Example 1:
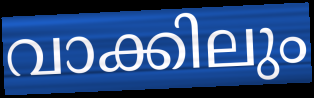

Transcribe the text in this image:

വാക്കിലും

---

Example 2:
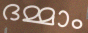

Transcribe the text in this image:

ദമ്മാം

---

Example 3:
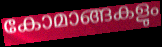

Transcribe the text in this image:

കോമാങ്ങകളും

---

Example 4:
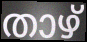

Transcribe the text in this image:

താഴ്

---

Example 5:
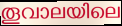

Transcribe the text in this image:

തൂവാലയിലെ